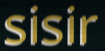
sisir